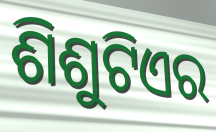
ଶିଶୁଟିଏର